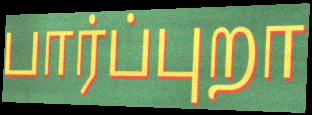
பார்ப்புறா